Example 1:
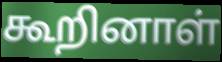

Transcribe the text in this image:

கூறினாள்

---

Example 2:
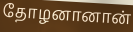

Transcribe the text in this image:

தோழனானான்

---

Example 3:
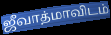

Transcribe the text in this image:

ஜீவாத்மாவிடம்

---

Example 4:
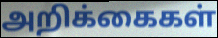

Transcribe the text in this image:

அறிக்கைகள்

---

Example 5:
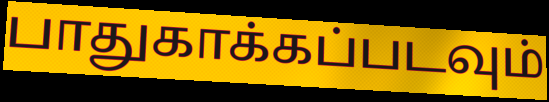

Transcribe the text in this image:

பாதுகாக்கப்படவும்